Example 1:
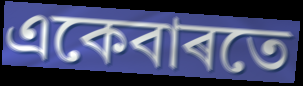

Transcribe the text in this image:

একেবাৰতে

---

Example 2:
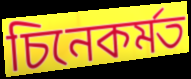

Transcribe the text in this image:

চিনেকৰ্মত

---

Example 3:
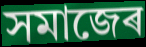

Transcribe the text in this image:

সমাজেৰ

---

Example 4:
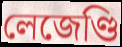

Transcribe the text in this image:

লেজেণ্ডি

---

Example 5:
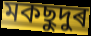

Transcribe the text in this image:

মকছুদুৰ